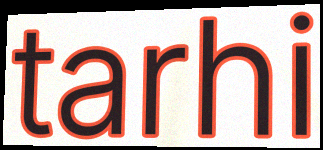
tarhi